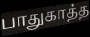
பாதுகாத்த